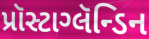
પ્રૉસ્ટાગ્લૅન્ડિન